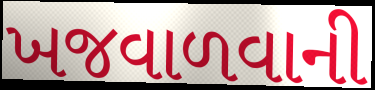
ખજવાળવાની